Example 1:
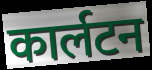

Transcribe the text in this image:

कार्लटन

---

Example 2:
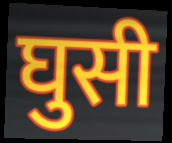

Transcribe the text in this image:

घुसी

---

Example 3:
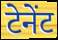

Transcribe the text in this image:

टेनेंट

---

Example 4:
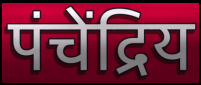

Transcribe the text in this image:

पंचेंद्रिय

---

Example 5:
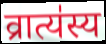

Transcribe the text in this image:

व्रात्य॑स्य